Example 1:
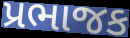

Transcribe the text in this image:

પ્રભાજક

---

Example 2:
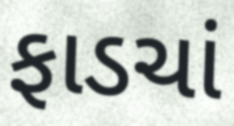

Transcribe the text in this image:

ફાડચાં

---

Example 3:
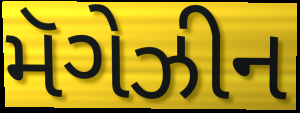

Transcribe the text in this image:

મૅગેઝીન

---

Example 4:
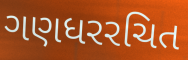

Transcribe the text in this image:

ગણધરરચિત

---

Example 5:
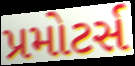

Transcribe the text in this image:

પ્રમોટર્સ